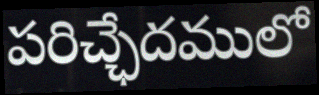
పరిచ్ఛేదములో